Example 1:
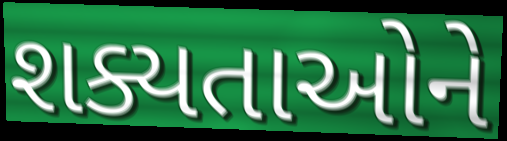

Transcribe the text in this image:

શક્યતાઓને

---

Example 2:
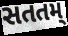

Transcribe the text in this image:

સતતમ્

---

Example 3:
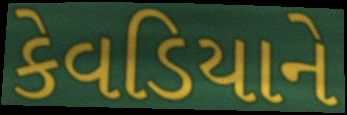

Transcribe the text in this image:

કેવડિયાને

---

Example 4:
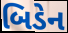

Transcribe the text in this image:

બિડેન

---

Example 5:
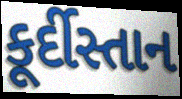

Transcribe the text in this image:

કૂર્દીસ્તાન